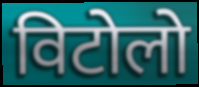
विटोलो